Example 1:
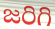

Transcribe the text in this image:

జరిగి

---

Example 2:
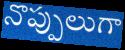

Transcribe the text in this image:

నొప్పులుగా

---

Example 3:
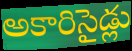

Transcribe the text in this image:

అకారిసైడ్లు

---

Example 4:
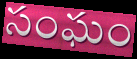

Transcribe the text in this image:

సంఘం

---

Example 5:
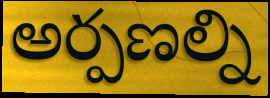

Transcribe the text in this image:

అర్పణల్ని